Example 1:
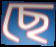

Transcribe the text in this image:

ছে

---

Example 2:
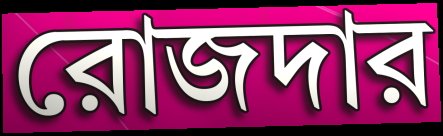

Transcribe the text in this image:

রোজদার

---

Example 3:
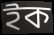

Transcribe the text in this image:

ইক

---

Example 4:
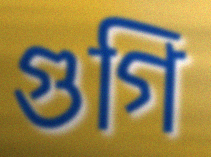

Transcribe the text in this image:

গুগি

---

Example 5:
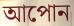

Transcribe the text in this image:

আপোন